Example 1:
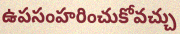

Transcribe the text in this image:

ఉపసంహరించుకోవచ్చు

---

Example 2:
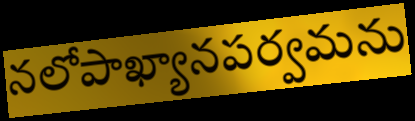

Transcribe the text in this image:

నలోపాఖ్యానపర్వమను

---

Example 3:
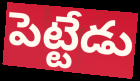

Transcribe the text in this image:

పెట్టేడు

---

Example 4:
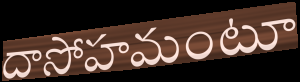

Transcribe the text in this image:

దాసోహమంటూ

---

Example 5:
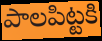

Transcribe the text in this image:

పాలపిట్టకి